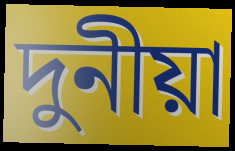
দুনীয়া